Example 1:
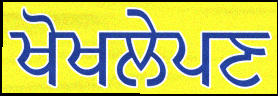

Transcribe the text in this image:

ਖੋਖਲੇਪਣ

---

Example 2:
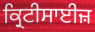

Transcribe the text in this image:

ਕ੍ਰਿਟੀਸਾਈਜ਼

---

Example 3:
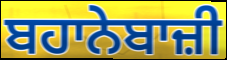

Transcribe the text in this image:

ਬਹਾਨੇਬਾਜ਼ੀ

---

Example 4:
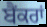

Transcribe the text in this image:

ਬੈਂਕਰਾਂ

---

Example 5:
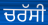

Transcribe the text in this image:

ਚਰੱਸੀ